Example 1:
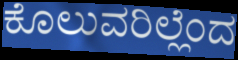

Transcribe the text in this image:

ಕೊಲುವರಿಲ್ಲೆಂದ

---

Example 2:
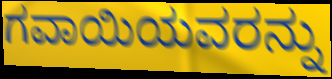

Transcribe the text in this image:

ಗವಾಯಿಯವರನ್ನು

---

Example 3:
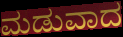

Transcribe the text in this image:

ಮಡುವಾದ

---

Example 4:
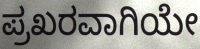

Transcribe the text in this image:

ಪ್ರಖರವಾಗಿಯೇ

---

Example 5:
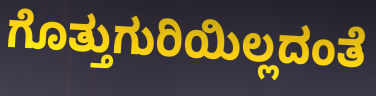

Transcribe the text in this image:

ಗೊತ್ತುಗುರಿಯಿಲ್ಲದಂತೆ